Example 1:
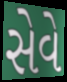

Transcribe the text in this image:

સેવે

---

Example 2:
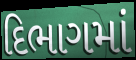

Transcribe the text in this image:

દિભાગમાં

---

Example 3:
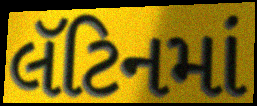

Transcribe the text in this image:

લૅટિનમાં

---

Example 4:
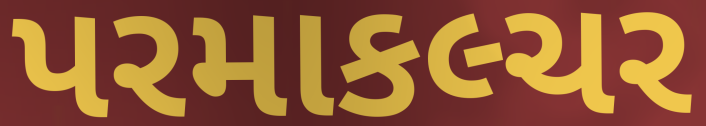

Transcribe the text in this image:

પરમાકલ્ચર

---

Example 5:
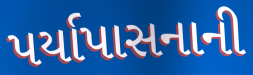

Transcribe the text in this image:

પર્યાપાસનાની